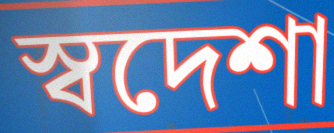
স্বদেশা